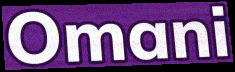
Omani